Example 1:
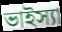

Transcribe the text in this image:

ভাইস্যা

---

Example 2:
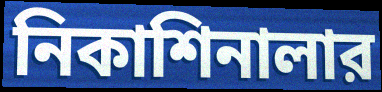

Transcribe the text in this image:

নিকাশিনালার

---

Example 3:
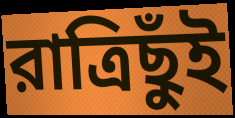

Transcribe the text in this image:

রাত্রিছুঁই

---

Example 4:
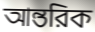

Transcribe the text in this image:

আন্তরিক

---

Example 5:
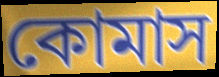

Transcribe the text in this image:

কোমাস